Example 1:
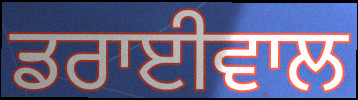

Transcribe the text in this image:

ਡਰਾਈਵਾਲ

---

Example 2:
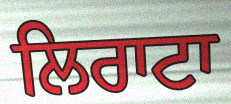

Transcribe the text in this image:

ਲਿਰਾਟਾ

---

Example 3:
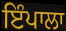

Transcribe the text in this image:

ਇੰਪਾਲਾ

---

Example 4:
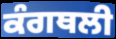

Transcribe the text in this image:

ਕੰਗਥਲੀ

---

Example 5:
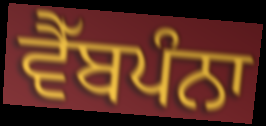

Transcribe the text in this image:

ਵੈੱਬਪੰਨਾ